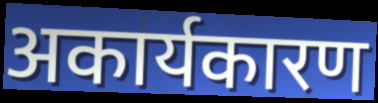
अकार्यकारण